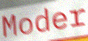
Moder